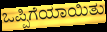
ಒಪ್ಪಿಗೆಯಾಯಿತು